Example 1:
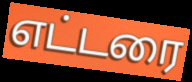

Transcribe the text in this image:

எட்டரை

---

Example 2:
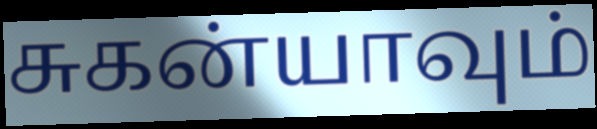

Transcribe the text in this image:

சுகன்யாவும்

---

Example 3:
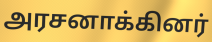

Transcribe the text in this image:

அரசனாக்கினர்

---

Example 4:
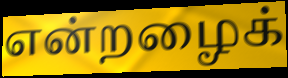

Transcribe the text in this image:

என்றழைக்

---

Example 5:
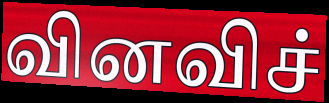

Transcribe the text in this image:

வினவிச்